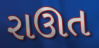
રાઊત